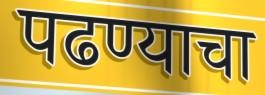
पढण्याचा